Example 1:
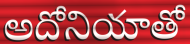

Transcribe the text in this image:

అదోనియాతో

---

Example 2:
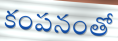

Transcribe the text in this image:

కంపనంతో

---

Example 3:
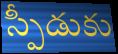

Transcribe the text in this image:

స్పీడుకు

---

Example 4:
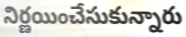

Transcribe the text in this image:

నిర్ణయించేసుకున్నారు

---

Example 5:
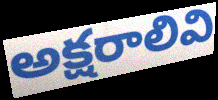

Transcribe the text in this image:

అక్షరాలివి